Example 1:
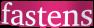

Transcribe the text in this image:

fastens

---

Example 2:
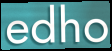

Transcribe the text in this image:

edho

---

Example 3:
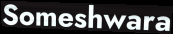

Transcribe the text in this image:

Someshwara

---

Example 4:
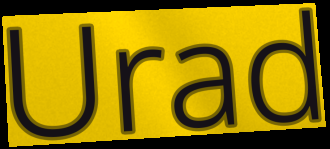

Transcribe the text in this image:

Urad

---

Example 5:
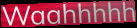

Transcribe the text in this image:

Waahhhhh